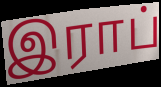
இராப்